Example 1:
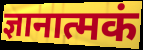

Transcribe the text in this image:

ज्ञानात्मकं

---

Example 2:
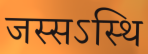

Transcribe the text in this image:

जस्सऽस्थि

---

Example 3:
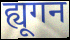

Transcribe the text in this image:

ह्यूगन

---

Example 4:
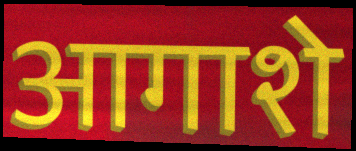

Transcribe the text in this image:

आगाशे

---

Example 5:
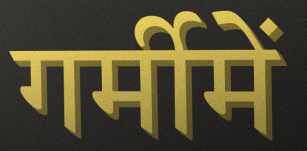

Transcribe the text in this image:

गर्मीमें